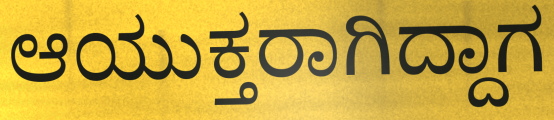
ಆಯುಕ್ತರಾಗಿದ್ದಾಗ